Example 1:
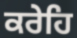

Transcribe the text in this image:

ਕਰੇਹਿ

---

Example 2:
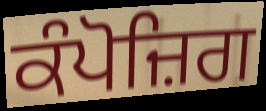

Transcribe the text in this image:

ਕੰਪੋਜ਼ਿਗ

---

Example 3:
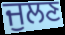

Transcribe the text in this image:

ਜੁਲਣ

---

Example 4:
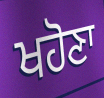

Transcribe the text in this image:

ਖਹੋਣਾ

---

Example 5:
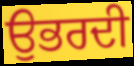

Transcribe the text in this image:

ਉਭਰਦੀ